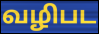
வழிபட